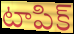
టాపిక్